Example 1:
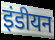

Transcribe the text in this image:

इंडीयन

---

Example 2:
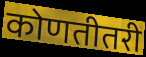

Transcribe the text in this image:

कोणतीतरी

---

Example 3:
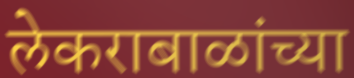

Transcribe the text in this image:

लेकराबाळांच्या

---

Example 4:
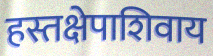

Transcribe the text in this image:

हस्तक्षेपाशिवाय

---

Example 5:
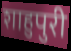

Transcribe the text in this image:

शाहुपुरी